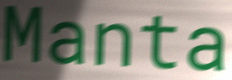
Manta